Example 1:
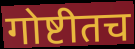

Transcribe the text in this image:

गोष्टीतच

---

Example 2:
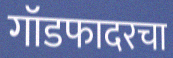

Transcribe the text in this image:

गॉडफादरचा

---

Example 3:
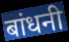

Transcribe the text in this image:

बांधनी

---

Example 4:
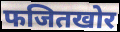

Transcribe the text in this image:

फजितखोर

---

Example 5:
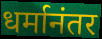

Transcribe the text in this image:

धर्मानंतर